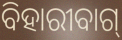
ବିହାରୀବାଗ୍